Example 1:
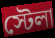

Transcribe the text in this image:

স্টেলা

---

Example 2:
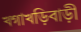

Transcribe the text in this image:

খগাখড়িবাড়ী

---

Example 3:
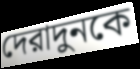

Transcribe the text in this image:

দেরাদুনকে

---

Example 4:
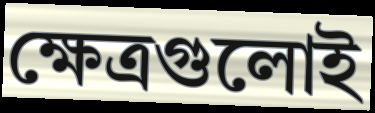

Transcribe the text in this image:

ক্ষেত্রগুলোই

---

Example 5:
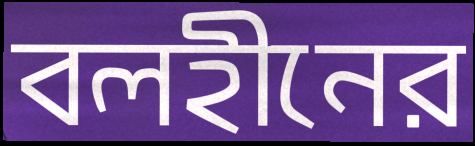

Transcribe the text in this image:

বলহীনের